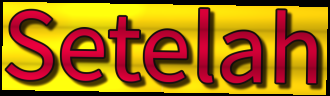
Setelah